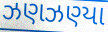
ઝણઝણ્યા